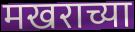
मखराच्या